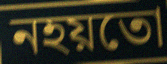
নহয়তো